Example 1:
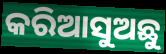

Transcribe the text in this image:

କରିଆସୁଅଛୁ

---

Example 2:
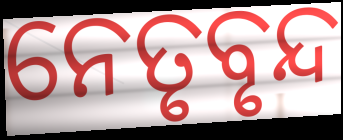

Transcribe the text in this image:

ନେତୃବୃନ୍ଦ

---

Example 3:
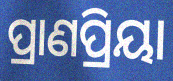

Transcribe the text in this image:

ପ୍ରାଣପ୍ରିୟା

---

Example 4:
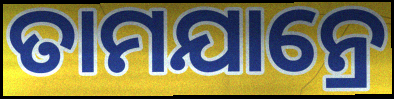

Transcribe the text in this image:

ତାମଯାନ୍ରେ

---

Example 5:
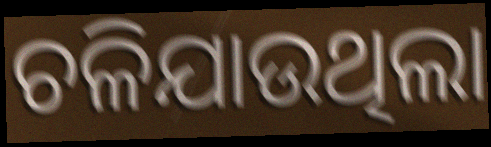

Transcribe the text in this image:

ଚଳିଯାଉଥିଲା